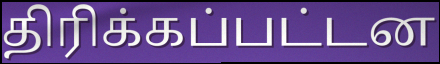
திரிக்கப்பட்டன